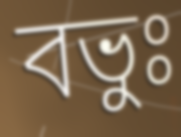
বভুঃ